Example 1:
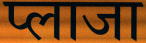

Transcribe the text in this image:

प्‍लाजा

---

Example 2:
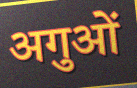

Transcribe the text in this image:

अगुओं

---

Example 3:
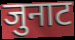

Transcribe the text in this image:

जुनाट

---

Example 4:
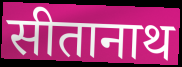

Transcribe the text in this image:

सीतानाथ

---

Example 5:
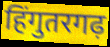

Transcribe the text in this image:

हिंगुतरगढ़